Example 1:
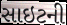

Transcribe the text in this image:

સાઇટની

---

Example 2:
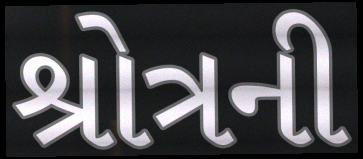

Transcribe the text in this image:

શ્રોત્રની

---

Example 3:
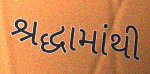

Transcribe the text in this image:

શ્રદ્ધામાંથી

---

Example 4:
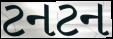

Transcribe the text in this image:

ટનટન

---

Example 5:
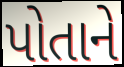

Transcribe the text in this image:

પોતાને